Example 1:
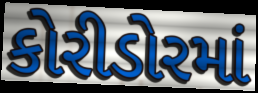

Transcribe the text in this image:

કોરીડોરમાં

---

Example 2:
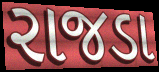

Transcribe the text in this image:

રાજડા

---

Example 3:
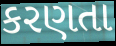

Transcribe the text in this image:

કરણતા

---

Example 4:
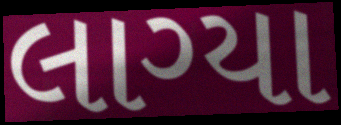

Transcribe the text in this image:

લાગ્યા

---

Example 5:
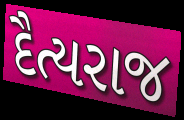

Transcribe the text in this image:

દૈત્યરાજ